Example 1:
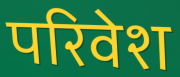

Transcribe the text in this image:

परिवेश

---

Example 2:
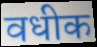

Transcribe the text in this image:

वधीक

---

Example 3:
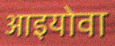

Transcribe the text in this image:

आइयोवा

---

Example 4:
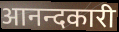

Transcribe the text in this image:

आनन्दकारी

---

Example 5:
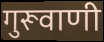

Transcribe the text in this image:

गुरूवाणी